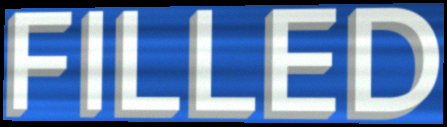
FILLED